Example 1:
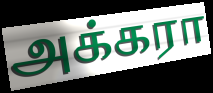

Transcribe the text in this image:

அக்கரா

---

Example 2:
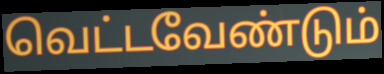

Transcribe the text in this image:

வெட்டவேண்டும்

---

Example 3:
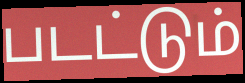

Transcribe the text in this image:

படட்டும்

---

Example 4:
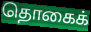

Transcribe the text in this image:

தொகைக்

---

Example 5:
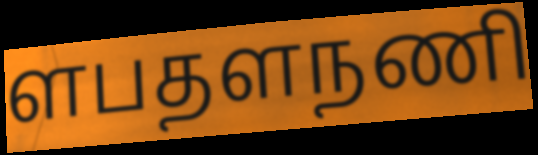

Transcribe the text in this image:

ளபதளநணி